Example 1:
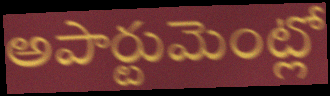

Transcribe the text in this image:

అపార్టుమెంట్లో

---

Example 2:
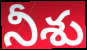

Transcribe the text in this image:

నీశు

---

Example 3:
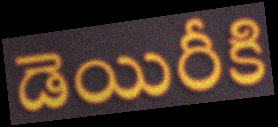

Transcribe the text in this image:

డెయిరీకి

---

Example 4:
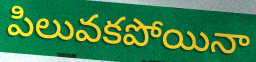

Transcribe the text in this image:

పిలువకపోయినా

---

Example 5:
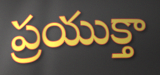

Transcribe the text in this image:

ప్రయుక్తా